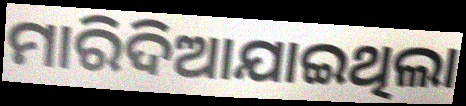
ମାରିଦିଆଯାଇଥିଲା